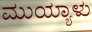
ಮುಯ್ಯಾಳು